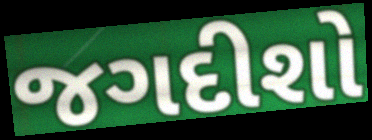
જગદીશો